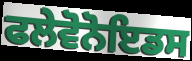
ਫਲੇਵੋਨੋਇਡਸ